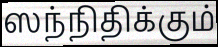
ஸந்நிதிக்கும்